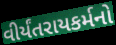
વીર્યંતરાયકર્મનો